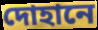
দোহানে